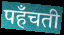
पहँचती